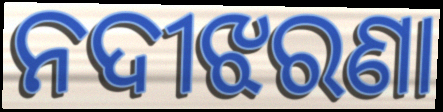
ନଦୀଝରଣା